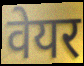
वेयर